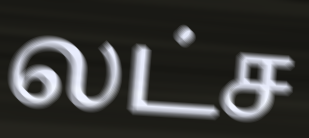
லட்ச